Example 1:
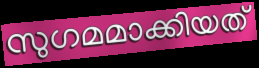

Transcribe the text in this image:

സുഗമമാക്കിയത്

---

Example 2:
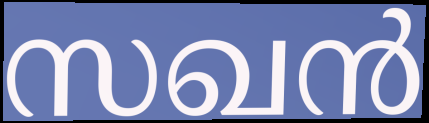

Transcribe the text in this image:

സഖൻ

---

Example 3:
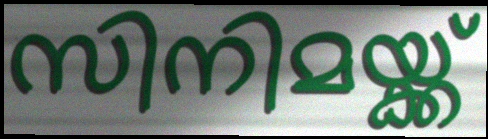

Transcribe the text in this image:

സിനിമയ്ക്ക്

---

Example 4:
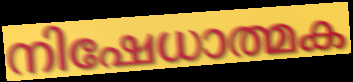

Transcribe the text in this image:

നിഷേധാത്മക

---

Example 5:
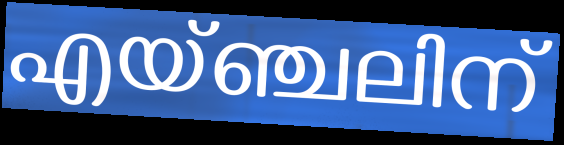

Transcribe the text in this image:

എയ്ഞ്ചലിന്